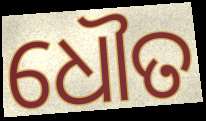
ଧୌତ